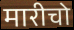
मारीचो